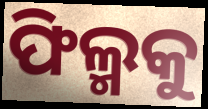
ଫିଲ୍ମକୁ